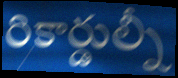
రికార్డుల్నీ